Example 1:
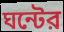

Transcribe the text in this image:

ঘন্টের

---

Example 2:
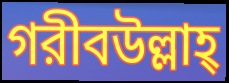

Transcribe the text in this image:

গরীবউল্লাহ্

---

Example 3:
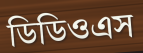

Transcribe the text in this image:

ডিডিওএস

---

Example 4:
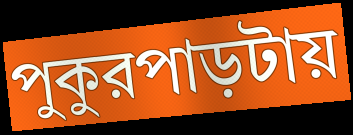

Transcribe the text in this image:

পুকুরপাড়টায়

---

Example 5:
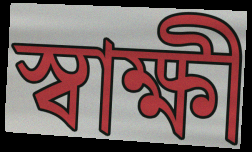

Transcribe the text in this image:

স্বাক্ষী